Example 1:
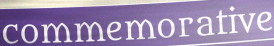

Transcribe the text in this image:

commemorative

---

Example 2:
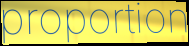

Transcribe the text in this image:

proportion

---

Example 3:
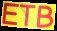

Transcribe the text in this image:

ETB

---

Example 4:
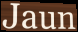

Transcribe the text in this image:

Jaun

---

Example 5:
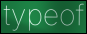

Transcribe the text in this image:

typeof